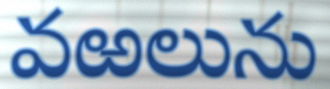
వఱలును